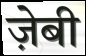
ज़ेबी